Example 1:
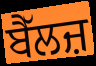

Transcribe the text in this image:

ਬੈੱਲਜ਼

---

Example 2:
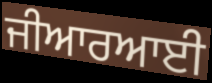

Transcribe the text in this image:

ਜੀਆਰਆਈ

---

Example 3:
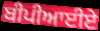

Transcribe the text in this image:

ਬੀਪੀਆਈਏ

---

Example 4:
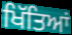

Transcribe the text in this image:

ਖਿੱਤਿਆਂ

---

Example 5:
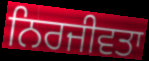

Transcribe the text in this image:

ਨਿਰਜੀਵਤਾ